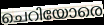
ചെറിയോരെ